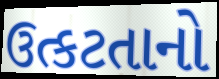
ઉત્કટતાનો